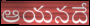
ఆయనదే